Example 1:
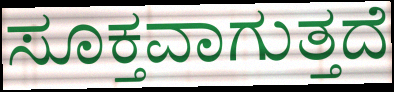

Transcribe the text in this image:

ಸೂಕ್ತವಾಗುತ್ತದೆ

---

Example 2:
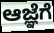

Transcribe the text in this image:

ಆಜ್ಞೆಗೆ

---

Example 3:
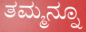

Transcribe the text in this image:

ತಮ್ಮನ್ನೂ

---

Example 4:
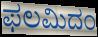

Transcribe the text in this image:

ಫಲಮಿದಂ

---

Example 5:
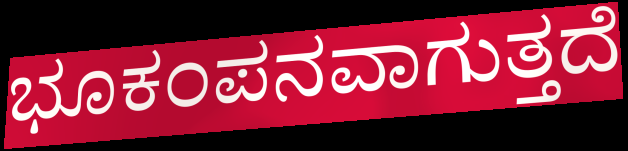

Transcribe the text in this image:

ಭೂಕಂಪನವಾಗುತ್ತದೆ